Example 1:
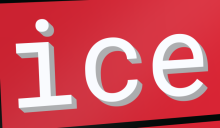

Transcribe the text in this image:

ice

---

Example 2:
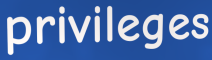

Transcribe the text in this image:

privileges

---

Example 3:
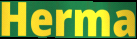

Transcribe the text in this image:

Herma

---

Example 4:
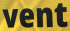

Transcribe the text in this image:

vent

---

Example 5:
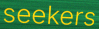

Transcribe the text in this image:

seekers